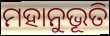
ମହାନୁଭୂତି